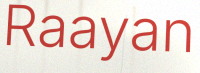
Raayan